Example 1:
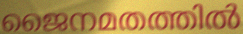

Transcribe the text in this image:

ജൈനമതത്തിൽ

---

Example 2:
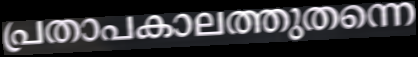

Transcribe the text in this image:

പ്രതാപകാലത്തുതന്നെ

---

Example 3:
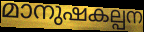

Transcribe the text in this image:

മാനുഷകല്പന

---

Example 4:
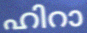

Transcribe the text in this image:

ഹിറാ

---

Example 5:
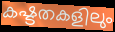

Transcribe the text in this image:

കഷ്ടതകളിലും